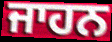
ਜਾਹਨ